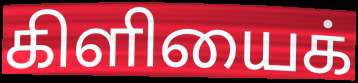
கிளியைக்